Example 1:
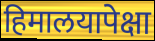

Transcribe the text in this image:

हिमालयापेक्षा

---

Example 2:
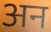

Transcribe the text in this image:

अन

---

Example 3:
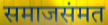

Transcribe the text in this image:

समाजसंमत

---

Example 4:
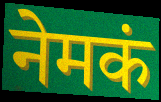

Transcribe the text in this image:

नेमकं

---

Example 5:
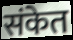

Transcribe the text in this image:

संकेत